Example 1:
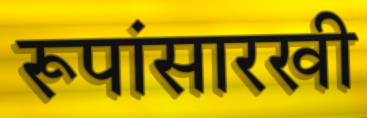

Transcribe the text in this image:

रूपांसारखी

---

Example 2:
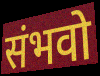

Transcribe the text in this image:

संभवो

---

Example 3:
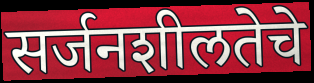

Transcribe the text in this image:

सर्जनशीलतेचे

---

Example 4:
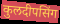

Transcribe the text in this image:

कुलदीपसिंग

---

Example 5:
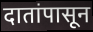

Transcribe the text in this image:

दातांपासून